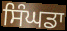
ਸਿੰਘਡਾ